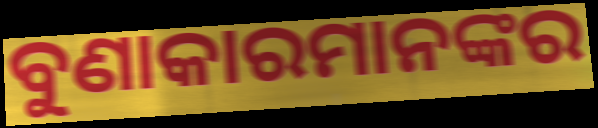
ବୁଣାକାରମାନଙ୍କର